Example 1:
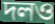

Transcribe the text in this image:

দলও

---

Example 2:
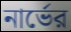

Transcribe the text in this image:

নার্ভের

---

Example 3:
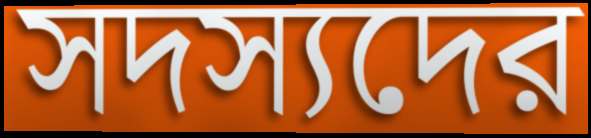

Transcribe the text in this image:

সদস্যদের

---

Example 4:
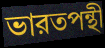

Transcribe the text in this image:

ভারতপন্থী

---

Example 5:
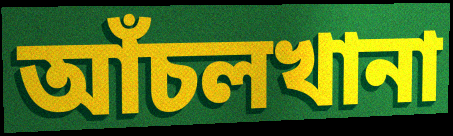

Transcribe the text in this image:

আঁচলখানা